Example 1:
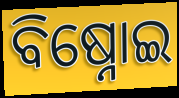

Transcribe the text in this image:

ବିଷ୍ନୋଇ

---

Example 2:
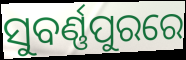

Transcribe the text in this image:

ସୁବର୍ଣ୍ଣପୁରରେ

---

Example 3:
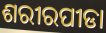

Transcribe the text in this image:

ଶରୀରପୀଡା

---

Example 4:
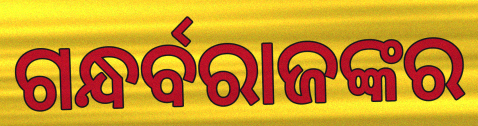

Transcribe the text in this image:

ଗନ୍ଧର୍ବରାଜଙ୍କର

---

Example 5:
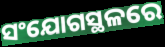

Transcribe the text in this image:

ସଂଯୋଗସ୍ଥଳରେ